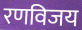
रणविजय